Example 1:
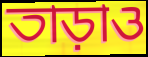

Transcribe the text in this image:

তাড়াও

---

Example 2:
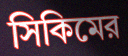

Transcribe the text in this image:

সিকিমের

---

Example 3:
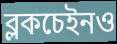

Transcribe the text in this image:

ব্লকচেইনও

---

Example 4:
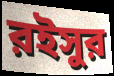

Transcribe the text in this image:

রইসুর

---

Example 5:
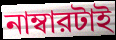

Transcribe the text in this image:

নাম্বারটাই